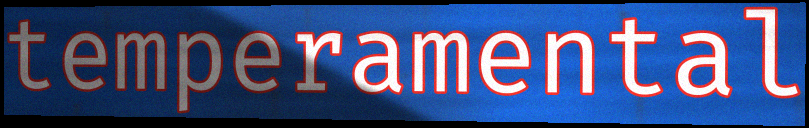
temperamental